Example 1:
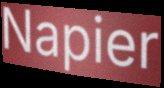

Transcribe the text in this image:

Napier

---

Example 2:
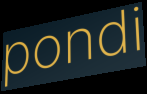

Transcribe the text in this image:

pondi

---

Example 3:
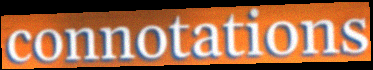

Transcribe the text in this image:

connotations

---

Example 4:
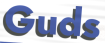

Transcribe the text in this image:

Guds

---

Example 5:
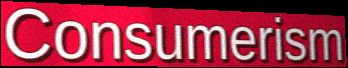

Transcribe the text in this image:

Consumerism